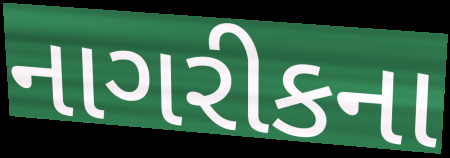
નાગરીકના